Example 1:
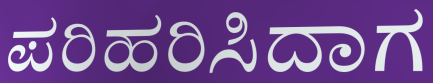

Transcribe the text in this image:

ಪರಿಹರಿಸಿದಾಗ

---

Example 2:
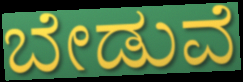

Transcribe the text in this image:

ಬೇಡುವೆ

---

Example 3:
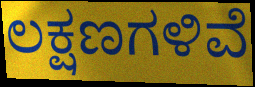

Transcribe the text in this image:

ಲಕ್ಷಣಗಳಿವೆ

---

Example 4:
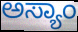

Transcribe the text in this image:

ಅಸ್ಯಾಂ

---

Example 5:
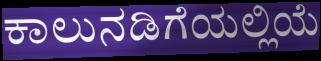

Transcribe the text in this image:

ಕಾಲುನಡಿಗೆಯಲ್ಲಿಯೆ